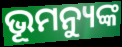
ଭୂମନ୍ୟୁଙ୍କ